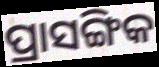
ପ୍ରାସଙ୍ଗିକ